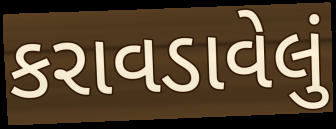
કરાવડાવેલું